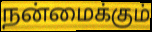
நன்மைக்கும்